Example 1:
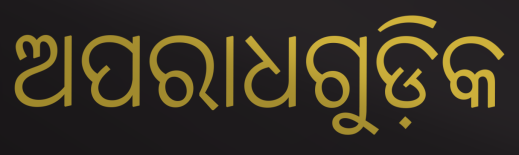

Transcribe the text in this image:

ଅପରାଧଗୁଡ଼ିକ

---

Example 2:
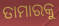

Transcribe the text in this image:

ତାମାରକୁ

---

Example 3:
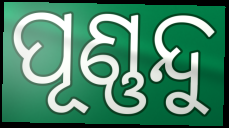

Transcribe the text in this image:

ପୂଣ୍ଣନ୍ଦୁ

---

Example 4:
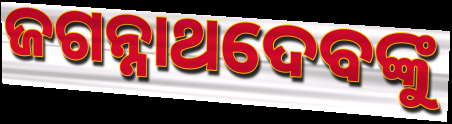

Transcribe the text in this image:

ଜଗନ୍ନାଥଦେବଙ୍କୁ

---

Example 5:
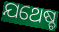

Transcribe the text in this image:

ଯଥେଷ୍ଚ